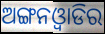
ଅଙ୍ଗନଓ୍ବାଡିର